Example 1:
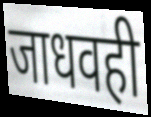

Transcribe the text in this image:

जाधवही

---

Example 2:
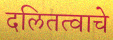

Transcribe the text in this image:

दलितत्वाचे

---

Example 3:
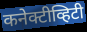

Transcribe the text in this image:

कनेक्टीव्हिटी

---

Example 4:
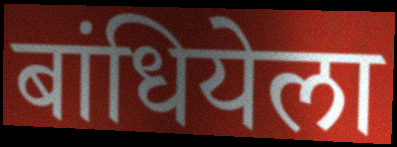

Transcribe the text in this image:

बांधियेला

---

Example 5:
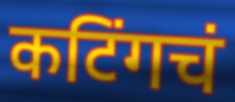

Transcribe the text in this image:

कटिंगचं